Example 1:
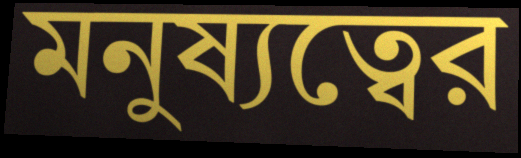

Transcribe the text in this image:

মনুষ্যত্বের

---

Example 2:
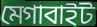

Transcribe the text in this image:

মেগাবাইট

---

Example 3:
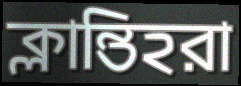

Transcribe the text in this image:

ক্লান্তিহরা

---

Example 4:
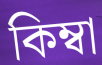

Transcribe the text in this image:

কিম্বা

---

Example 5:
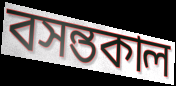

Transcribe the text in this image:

বসন্তকাল